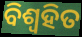
ବିଶ୍ଵହିତ